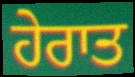
ਹੇਰਾਤ